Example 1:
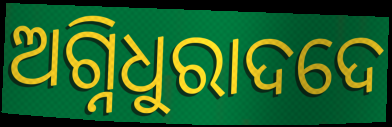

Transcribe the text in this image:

ଅଗ୍ନିଧୁରାଦଦେ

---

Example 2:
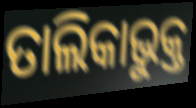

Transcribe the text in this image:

ତାଲିକାଭୁକ୍ତ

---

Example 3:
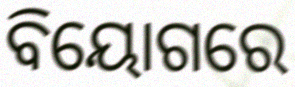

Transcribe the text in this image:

ବିୟୋଗରେ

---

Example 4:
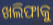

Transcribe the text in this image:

ଖଲିଫାକୁ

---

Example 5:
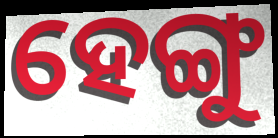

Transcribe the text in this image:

ହେଙ୍ଗୁ